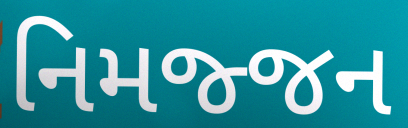
નિમજ્જન